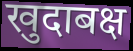
खुदाबक्ष